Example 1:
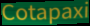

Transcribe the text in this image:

Cotapaxi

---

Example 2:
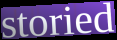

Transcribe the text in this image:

storied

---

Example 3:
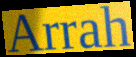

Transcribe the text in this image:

Arrah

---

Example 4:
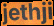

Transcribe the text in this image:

jethji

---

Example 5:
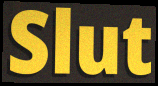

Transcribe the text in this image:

Slut